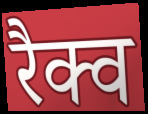
रैक्व